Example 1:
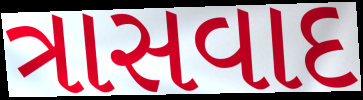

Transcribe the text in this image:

ત્રાસવાદ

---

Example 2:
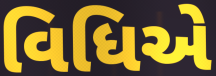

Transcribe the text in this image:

વિધિએ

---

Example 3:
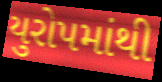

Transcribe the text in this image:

યુરોપમાંથી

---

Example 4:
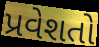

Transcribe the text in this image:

પ્રવેશતો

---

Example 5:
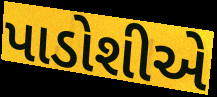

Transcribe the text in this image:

પાડોશીએ